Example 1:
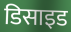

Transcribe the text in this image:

डिसाइड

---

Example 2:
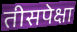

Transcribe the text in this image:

तीसपेक्षा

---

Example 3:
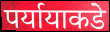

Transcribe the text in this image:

पर्यायाकडे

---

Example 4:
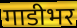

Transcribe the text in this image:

गाडीभर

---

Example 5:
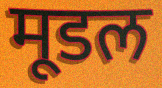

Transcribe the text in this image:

मूडल